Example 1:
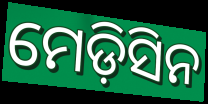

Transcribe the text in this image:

ମେଡ଼ିସିନ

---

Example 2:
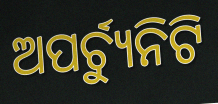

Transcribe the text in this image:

ଅପର୍ଚ୍ୟୁନିଟି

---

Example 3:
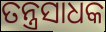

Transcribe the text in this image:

ତନ୍ତ୍ରସାଧକ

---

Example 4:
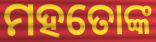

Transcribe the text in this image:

ମହତୋଙ୍କ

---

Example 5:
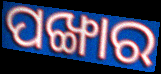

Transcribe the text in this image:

ପଙ୍ଖାର